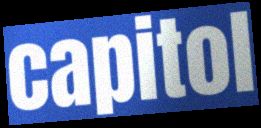
capitol